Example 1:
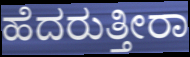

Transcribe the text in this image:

ಹೆದರುತ್ತೀರಾ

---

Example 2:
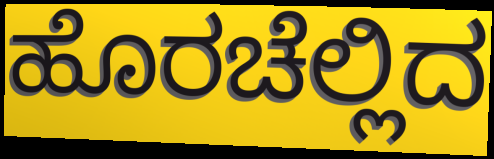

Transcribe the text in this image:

ಹೊರಚೆಲ್ಲಿದ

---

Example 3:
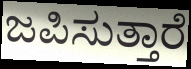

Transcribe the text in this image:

ಜಪಿಸುತ್ತಾರೆ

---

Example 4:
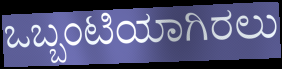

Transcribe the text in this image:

ಒಬ್ಬಂಟಿಯಾಗಿರಲು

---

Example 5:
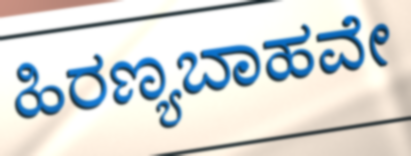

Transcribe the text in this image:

ಹಿರಣ್ಯಬಾಹವೇ